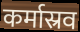
कर्मास्रव